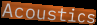
Acoustics